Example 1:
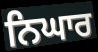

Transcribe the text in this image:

ਨਿਘਾਰ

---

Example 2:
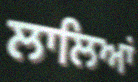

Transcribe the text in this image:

ਲਾਲਿਆਂ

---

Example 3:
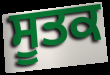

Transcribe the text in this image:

ਸੂਤਕ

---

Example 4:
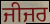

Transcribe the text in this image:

ਜੀਜਰ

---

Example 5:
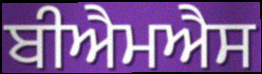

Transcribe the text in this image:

ਬੀਐਮਐਸ